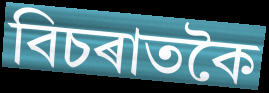
বিচৰাতকৈ